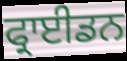
ਫ੍ਰਾਈਡਨ